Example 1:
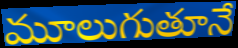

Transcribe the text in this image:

మూలుగుతూనే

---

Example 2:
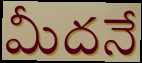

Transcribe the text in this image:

మీదనే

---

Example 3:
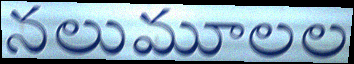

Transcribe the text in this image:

నలుమూలల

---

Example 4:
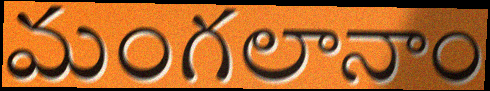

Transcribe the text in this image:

మంగలానాం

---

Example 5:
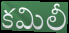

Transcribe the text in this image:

కమిలీ